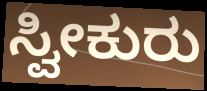
ಸ್ವೀಕುರು